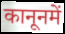
कानूनमें